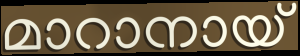
മാറാനായ്